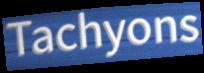
Tachyons